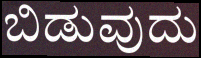
ಬಿಡುವುದು